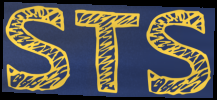
STS